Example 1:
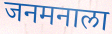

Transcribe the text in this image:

जनमनाला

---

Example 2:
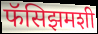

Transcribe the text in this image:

फॅसिझमशी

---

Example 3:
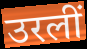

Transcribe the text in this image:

उरलीं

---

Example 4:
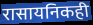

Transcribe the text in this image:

रासायनिकही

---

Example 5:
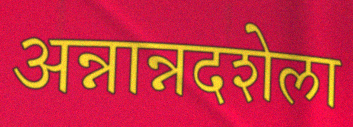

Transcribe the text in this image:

अन्नान्नदशेला